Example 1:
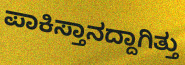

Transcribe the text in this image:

ಪಾಕಿಸ್ತಾನದ್ದಾಗಿತ್ತು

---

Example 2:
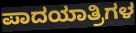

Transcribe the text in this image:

ಪಾದಯಾತ್ರಿಗಳ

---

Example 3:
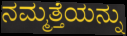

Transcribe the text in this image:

ನಮ್ಮತ್ತೆಯನ್ನು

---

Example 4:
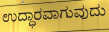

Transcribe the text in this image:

ಉದ್ಧಾರವಾಗುವುದು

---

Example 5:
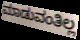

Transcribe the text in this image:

ಮಾಡುವಂತಿಲ್ಲ